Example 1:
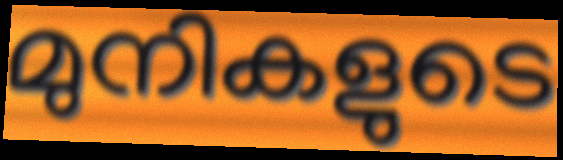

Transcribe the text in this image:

മുനികളുടെ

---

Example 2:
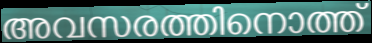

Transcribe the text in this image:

അവസരത്തിനൊത്ത്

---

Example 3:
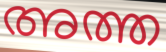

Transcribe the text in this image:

അത്ത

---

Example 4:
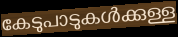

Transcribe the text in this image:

കേടുപാടുകൾക്കുള്ള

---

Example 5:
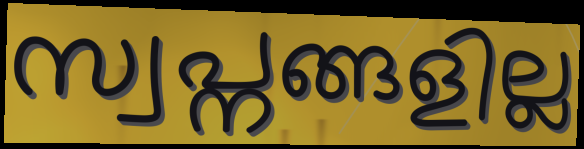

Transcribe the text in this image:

സ്വപ്നങ്ങളില്ല